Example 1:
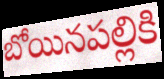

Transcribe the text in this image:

బోయినపల్లికి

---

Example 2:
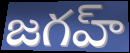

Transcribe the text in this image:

జగహ్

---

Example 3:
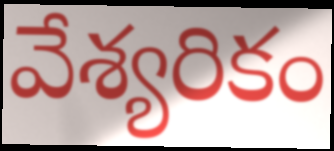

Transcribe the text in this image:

వేశ్యరికం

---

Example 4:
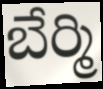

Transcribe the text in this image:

బేర్మి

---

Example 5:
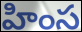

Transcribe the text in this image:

హింస